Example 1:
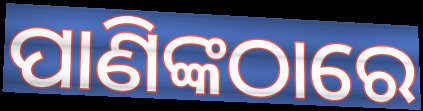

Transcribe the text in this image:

ପାଣିଙ୍କଠାରେ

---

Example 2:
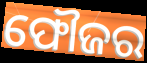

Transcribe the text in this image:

ଫୌଜର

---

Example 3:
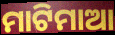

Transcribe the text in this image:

ମାଟିମାଆ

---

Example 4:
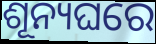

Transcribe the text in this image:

ଶୂନ୍ୟଘରେ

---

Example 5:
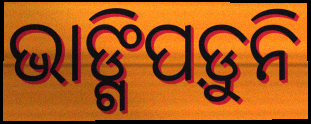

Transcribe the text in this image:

ଭାଙ୍ଗିପଡ଼ୁନି